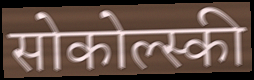
सोकोल्स्की